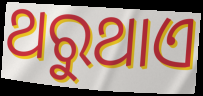
ଥରୁଥାଏ